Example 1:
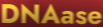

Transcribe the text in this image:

DNAase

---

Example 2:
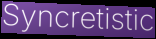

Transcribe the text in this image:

Syncretistic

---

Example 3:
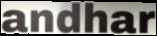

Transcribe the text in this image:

andhar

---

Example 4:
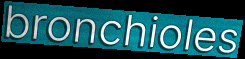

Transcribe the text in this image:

bronchioles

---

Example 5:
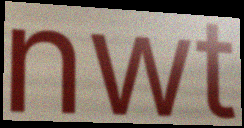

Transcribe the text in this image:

nwt